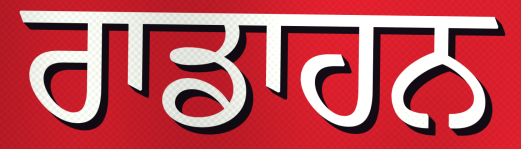
ਰਾਡਾਹਨ